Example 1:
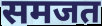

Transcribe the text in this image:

समजत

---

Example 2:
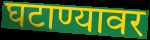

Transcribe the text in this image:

घटाण्यावर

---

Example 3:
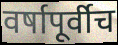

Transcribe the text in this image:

वर्षापूर्वीच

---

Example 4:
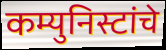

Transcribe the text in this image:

कम्युनिस्टांचे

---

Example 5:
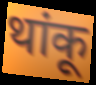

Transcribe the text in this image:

थांकू